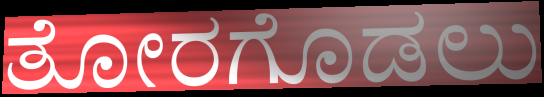
ತೋರಗೊಡಲು